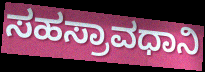
ಸಹಸ್ರಾವಧಾನಿ